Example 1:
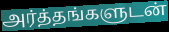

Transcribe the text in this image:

அர்த்தங்களுடன்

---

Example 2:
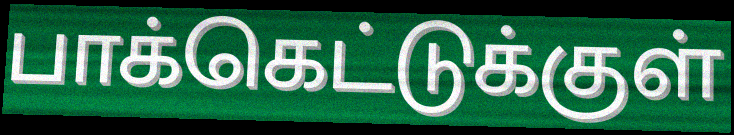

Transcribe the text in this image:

பாக்கெட்டுக்குள்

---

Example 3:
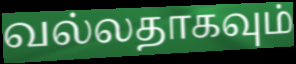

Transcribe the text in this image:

வல்லதாகவும்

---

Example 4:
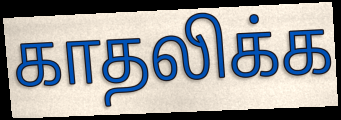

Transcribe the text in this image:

காதலிக்க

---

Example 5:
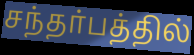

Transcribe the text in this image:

சந்தர்பத்தில்